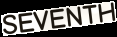
SEVENTH